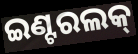
ଇଣ୍ଟରଲକ୍